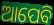
ଆପେବି